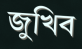
জুখিব